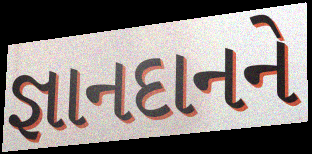
જ્ઞાનદાનને